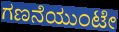
ಗಣನೆಯುಂಟೇ